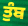
ਤੁੰਬ